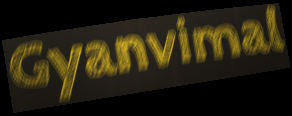
Gyanvimal